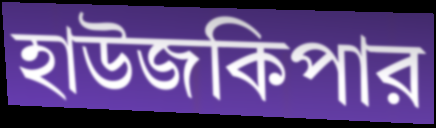
হাউজকিপার